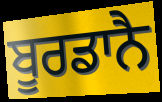
ਬੂਰਡਾਨੈ